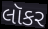
લૉકર